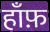
हाँफ़